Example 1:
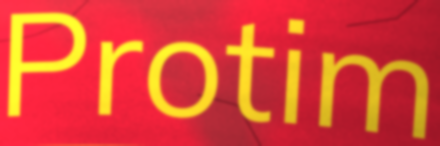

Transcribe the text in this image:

Protim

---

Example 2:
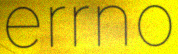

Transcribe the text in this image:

errno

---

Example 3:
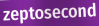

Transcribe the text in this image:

zeptosecond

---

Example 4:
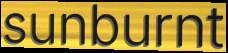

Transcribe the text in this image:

sunburnt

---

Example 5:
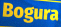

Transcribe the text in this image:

Bogura